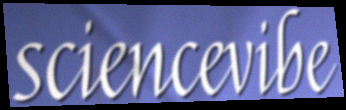
sciencevibe